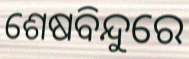
ଶେଷବିନ୍ଦୁରେ